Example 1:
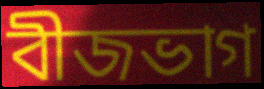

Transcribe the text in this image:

বীজভাগ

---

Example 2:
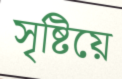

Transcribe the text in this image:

সৃষ্টিয়ে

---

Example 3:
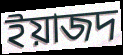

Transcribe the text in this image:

ইয়াজদ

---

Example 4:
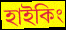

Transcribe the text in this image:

হাইকিং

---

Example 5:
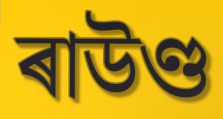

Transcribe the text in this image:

ৰাউণ্ড